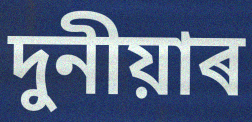
দুনীয়াৰ